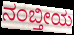
ನಂಬ್ತೀಯ